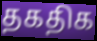
தகதிக